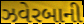
ઝવેરબાની